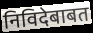
निविदेबाबत